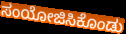
ಸಂಯೋಜಿಸಿಕೊಂಡು